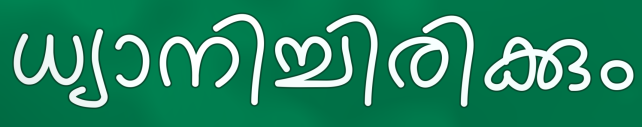
ധ്യാനിച്ചിരിക്കും